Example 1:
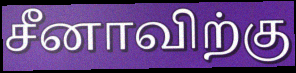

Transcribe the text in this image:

சீனாவிற்கு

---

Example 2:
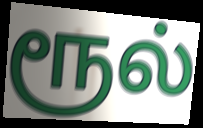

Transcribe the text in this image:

ரூல்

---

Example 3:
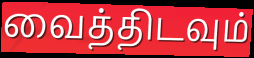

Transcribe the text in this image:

வைத்திடவும்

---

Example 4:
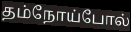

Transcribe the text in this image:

தம்நோய்போல்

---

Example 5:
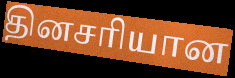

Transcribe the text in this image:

தினசரியான